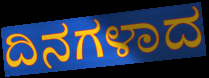
ದಿನಗಳಾದ